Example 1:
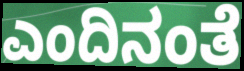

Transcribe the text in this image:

ಎಂದಿನಂತೆ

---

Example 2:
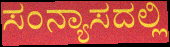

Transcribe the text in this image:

ಸಂನ್ಯಾಸದಲ್ಲಿ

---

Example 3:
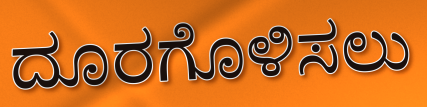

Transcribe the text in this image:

ದೂರಗೊಳಿಸಲು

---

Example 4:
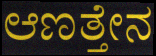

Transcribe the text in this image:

ಆಣತ್ತೇನ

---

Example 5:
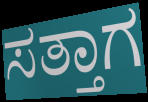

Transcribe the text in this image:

ಸತ್ತಾಗ